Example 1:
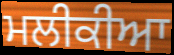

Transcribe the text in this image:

ਮਲੀਕੀਆ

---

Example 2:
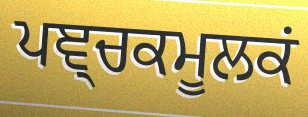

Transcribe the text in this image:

ਪਞ੍ਚਕਮੂਲਕਂ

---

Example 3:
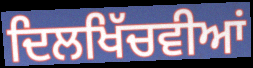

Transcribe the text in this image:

ਦਿਲਖਿੱਚਵੀਆਂ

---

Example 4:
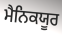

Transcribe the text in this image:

ਮੈਨਿਕਯੂਰ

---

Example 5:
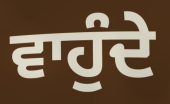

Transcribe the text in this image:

ਵਾਹੁੰਦੇ